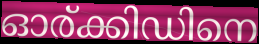
ഓര്ക്കിഡിനെ